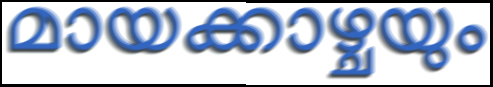
മായക്കാഴ്ചയും